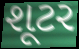
શૂટર